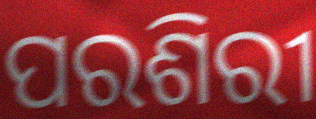
ପରଶିରୀ